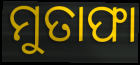
ମୁତାଫା